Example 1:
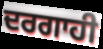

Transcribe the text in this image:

ਦਰਗਾਹੀ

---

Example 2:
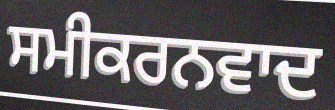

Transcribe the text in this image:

ਸਮੀਕਰਨਵਾਦ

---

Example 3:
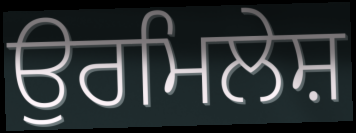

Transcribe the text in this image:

ਉਰਮਿਲੇਸ਼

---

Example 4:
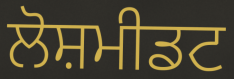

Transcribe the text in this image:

ਲੋਸ਼ਮੀਡਟ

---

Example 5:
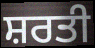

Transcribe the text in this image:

ਸ਼ਰਤੀ